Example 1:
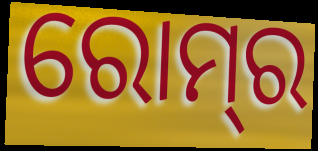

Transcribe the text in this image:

ରୋମ୍‍ର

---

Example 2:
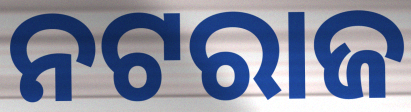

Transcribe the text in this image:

ନଟରାଜ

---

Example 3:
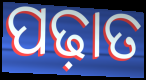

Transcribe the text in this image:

ପଢ଼ାତ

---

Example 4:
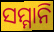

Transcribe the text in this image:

ସମ୍ମାନି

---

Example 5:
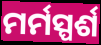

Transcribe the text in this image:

ମର୍ମସ୍ପର୍ଶ